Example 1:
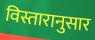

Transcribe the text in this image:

विस्तारानुसार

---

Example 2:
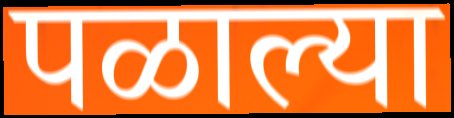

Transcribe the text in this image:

पळाल्या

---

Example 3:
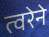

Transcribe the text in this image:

त्वरेने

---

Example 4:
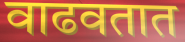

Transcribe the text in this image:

वाढवतात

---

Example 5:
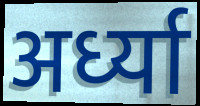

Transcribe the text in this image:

अर्ध्या